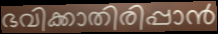
ഭവിക്കാതിരിപ്പാൻ